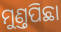
ମୁଣ୍ତପିଛା